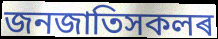
জনজাতিসকলৰ